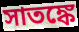
সাতঙ্কে